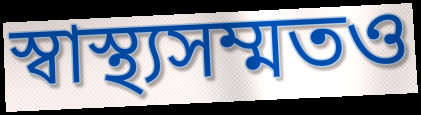
স্বাস্থ্যসম্মতও